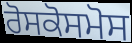
ਰੋਸਕੋਸਮੋਸ